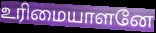
உரிமையாளனே